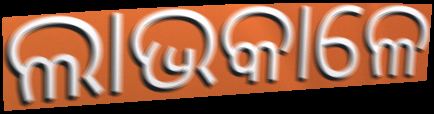
ଲାଭକାଳେ